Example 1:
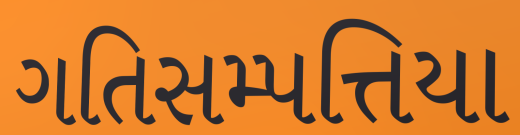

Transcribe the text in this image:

ગતિસમ્પત્તિયા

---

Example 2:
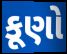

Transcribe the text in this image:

કૂણો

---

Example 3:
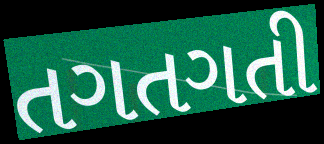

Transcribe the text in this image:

તગતગતી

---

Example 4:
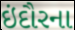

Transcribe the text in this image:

ઇંદૌરના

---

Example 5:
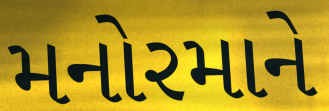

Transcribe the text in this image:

મનોરમાને